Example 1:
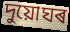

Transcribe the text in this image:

দুয়োঘৰ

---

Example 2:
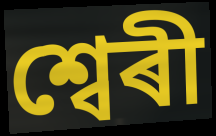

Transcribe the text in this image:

শ্বেৰী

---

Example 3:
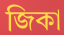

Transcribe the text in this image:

জিকা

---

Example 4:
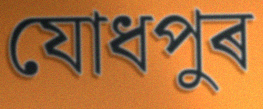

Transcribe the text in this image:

যোধপুৰ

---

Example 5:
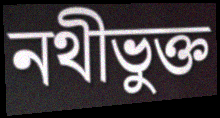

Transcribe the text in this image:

নথীভুক্ত